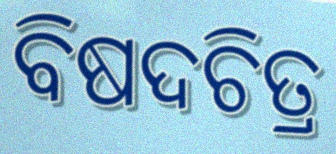
ବିଷଦଚିତ୍ର